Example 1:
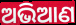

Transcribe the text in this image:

ଅଭିଆଣ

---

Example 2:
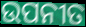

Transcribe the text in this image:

ଉପନୀତ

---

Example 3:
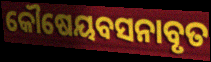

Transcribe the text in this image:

କୌଷେୟବସନାବୃତ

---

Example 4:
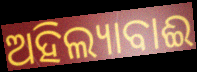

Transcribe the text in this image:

ଅହିଲ୍ୟାବାଈ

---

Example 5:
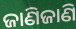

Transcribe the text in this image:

ଜାଣିଜାଣି